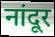
नांदूर